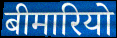
बीमारियो